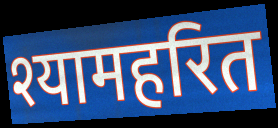
श्यामहरित